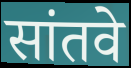
सांतवे